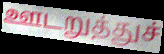
ஊடறுத்துச்